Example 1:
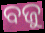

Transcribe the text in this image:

ବଜୁ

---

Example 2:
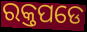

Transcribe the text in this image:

ରକ୍ତପଡେ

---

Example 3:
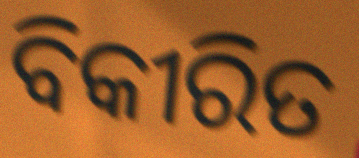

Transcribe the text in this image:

ବିକୀରିତ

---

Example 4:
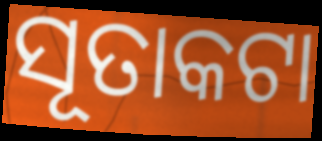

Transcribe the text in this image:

ସୂତାକଟା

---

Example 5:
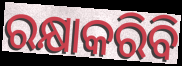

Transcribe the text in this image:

ରକ୍ଷାକରିବି